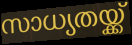
സാധ്യതയ്ക്ക്